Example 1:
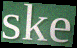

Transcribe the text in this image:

ske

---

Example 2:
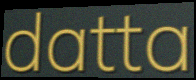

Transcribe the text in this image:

datta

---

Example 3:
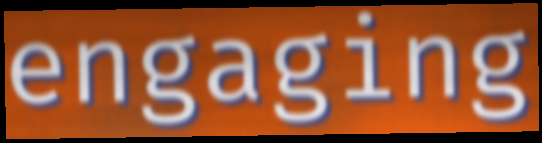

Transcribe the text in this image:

engaging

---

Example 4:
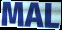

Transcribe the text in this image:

MAL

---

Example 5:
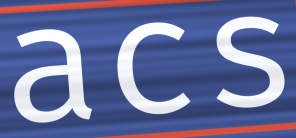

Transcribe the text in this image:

acs